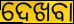
ଦେଖବା